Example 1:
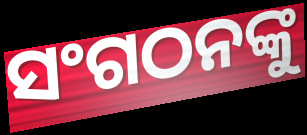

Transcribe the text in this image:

ସଂଗଠନଙ୍କୁ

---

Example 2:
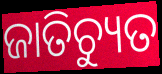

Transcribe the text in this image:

ଜାତିଚ୍ୟୁତ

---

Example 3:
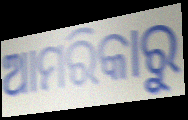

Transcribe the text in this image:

ଆମରିକାରୁ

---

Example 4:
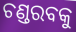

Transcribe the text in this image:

ଚଣ୍ଡରବକୁ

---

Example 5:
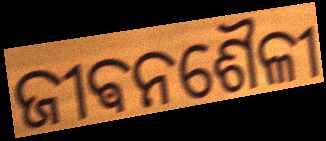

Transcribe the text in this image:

ଜୀଵନଶୈଳୀ